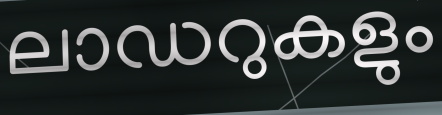
ലാഡറുകളും